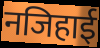
नजिहाई